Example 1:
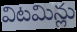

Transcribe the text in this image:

విటమిన్లు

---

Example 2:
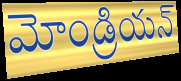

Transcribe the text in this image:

మోండ్రియన్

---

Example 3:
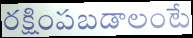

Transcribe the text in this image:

రక్షింపబడాలంటే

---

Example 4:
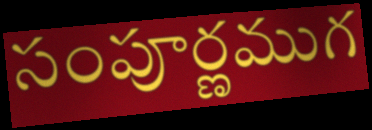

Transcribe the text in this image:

సంపూర్ణముగ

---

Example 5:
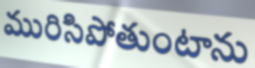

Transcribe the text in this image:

మురిసిపోతుంటాను